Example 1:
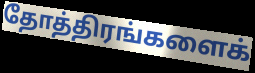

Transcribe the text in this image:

தோத்திரங்களைக்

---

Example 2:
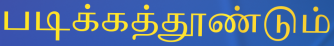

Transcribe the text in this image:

படிக்கத்தூண்டும்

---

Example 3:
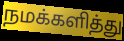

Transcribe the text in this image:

நமக்களித்து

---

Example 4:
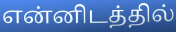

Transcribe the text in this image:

என்னிடத்தில்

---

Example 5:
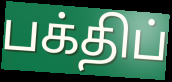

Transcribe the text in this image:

பக்திப்